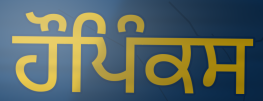
ਹੌਪਿੰਕਸ